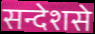
सन्देशसे